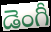
డెంగీ